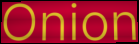
Onion